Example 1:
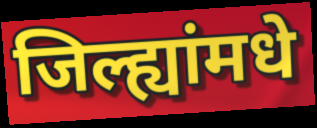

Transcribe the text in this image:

जिल्ह्यांमधे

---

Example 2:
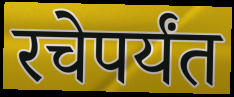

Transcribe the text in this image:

रचेपर्यंत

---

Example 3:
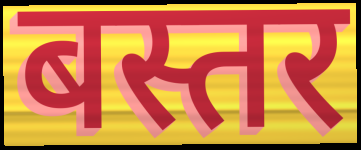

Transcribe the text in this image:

बस्तर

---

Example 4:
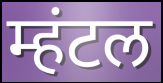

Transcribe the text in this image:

म्हंटल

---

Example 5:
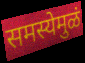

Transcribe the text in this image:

समस्येमुळं